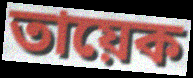
তায়েক